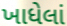
ખાધેલાં